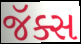
જૅક્સ